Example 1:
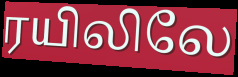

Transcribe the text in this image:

ரயிலிலே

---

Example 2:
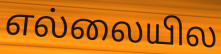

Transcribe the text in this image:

எல்லையில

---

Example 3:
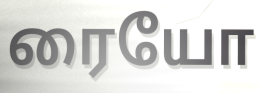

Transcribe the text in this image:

ரையோ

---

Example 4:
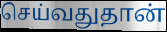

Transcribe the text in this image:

செய்வதுதான்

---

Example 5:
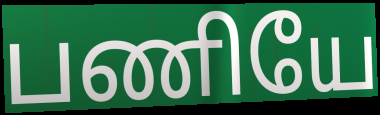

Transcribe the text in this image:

பணியே